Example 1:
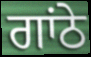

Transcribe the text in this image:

ਗਾਂਠੇ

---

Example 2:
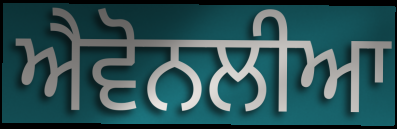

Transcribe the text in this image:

ਐਵੋਨਲੀਆ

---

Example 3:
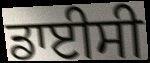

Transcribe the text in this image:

ਡਾਈਸੀ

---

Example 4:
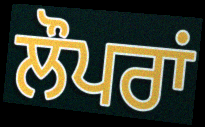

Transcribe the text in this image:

ਲੌਪਰਾਂ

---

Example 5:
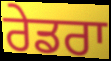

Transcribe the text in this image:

ਰੇਡਰਾ